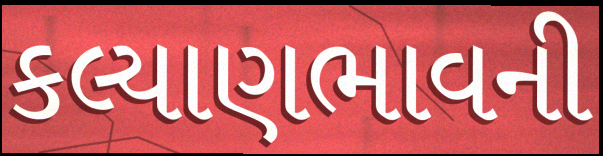
કલ્યાણભાવની